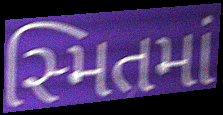
સ્મિતમાં